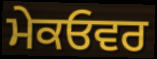
ਮੇਕਓਵਰ